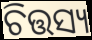
ଚିତ୍ତସ୍ୟ